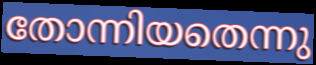
തോന്നിയതെന്നു